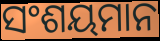
ସଂଶୟମାନ